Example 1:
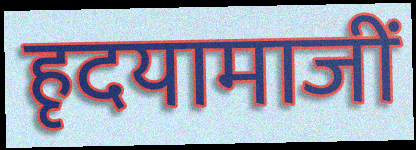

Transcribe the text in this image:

हृदयामाजीं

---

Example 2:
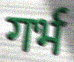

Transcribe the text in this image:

गर्भ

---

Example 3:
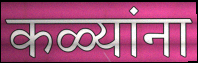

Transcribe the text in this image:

कळ्यांना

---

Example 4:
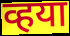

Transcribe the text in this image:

व्हया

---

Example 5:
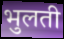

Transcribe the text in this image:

भुलती